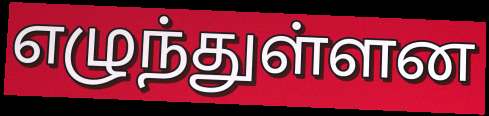
எழுந்துள்ளன